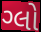
ગ્લો